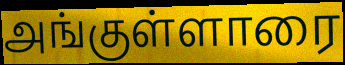
அங்குள்ளாரை